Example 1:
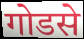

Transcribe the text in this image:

गोडसे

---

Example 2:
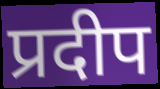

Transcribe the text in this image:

प्रदीप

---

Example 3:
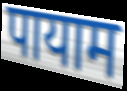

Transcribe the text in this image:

पायाम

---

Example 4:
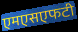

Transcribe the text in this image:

एमएसएफटी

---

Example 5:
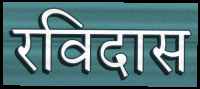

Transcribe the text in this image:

रविदास